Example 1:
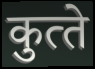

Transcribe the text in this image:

कुत्‍ते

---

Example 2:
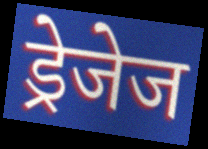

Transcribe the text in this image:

ड्रेजेज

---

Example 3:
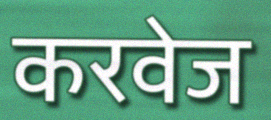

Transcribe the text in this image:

करवेज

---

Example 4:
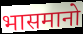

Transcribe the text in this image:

भासमानो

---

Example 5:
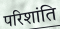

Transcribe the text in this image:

परिशांति